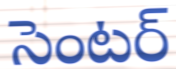
సెంటర్